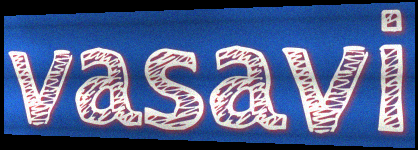
vasavi